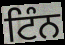
ਟਿੰਨ